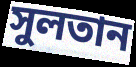
সুলতান